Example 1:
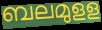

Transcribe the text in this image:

ബലമുളള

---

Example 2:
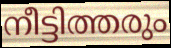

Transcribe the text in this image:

നീട്ടിത്തരും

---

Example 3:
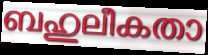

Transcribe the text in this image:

ബഹുലീകതാ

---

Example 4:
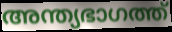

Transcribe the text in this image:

അന്ത്യഭാഗത്ത്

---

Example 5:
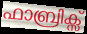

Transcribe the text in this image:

ഫാബ്രിക്സ്